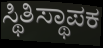
ಸ್ಥಿತಿಸ್ಥಾಪಕ